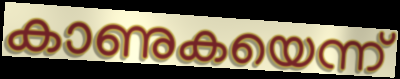
കാണുകയെന്ന്